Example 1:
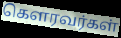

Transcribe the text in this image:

கெளரவர்கள்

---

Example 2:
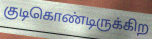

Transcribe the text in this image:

குடிகொண்டிருக்கிற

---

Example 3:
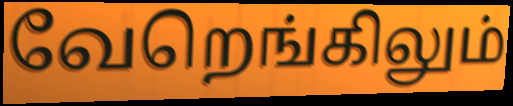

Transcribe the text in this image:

வேறெங்கிலும்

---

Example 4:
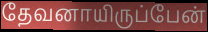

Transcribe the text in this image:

தேவனாயிருப்பேன்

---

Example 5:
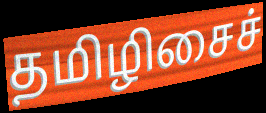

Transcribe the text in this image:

தமிழிசைச்